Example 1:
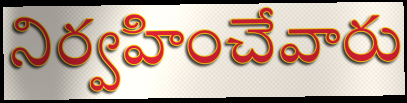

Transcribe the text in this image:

నిర్వహించేవారు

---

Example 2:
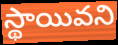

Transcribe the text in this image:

స్థాయివని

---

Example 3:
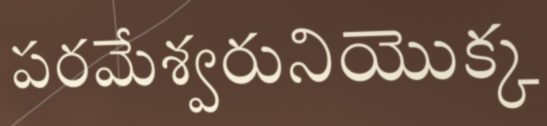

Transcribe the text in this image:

పరమేశ్వరునియొక్క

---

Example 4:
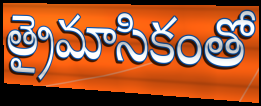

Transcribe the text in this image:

త్రైమాసికంతో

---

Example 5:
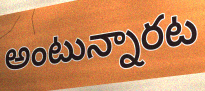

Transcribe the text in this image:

అంటున్నారట